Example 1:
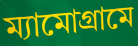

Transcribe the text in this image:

ম্যামোগ্রামে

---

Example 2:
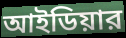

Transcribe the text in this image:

আইডিয়ার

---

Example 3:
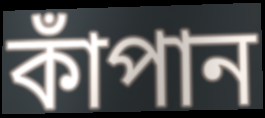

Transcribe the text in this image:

কাঁপান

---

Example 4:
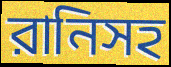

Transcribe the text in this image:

রানিসহ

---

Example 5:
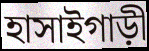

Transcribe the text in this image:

হাসাইগাড়ী